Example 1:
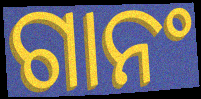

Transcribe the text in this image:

ଗାନଂ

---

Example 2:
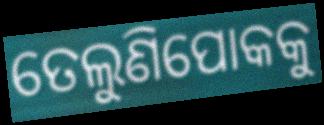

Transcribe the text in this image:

ତେଲୁଣିପୋକକୁ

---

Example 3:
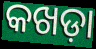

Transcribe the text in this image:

କଖଡ଼ା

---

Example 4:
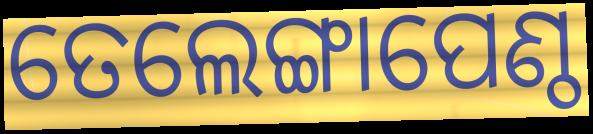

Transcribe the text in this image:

ତେଲେଙ୍ଗାପେଣ୍ଠ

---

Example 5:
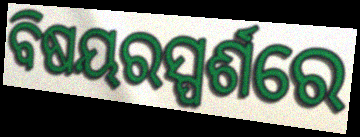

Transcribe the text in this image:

ବିଷୟରସ୍ପର୍ଶରେ